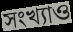
সংখ্যাও